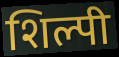
शिल्पी